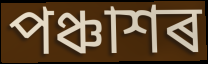
পঞ্চাশৰ